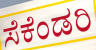
ಸೆಕೆಂಡರಿ